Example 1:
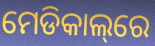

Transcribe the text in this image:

ମେଡିକାଲ୍‌ରେ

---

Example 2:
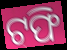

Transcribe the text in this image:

ଟଫି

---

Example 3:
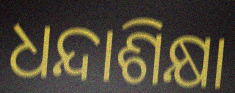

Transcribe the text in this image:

ଧନ୍ଦାଶିକ୍ଷା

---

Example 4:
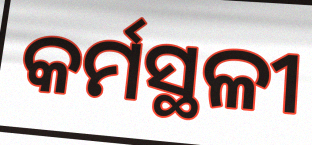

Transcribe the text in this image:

କର୍ମସ୍ଥଳୀ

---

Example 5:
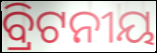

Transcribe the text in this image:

ବ୍ରିଟନୀୟ